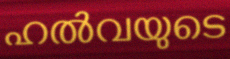
ഹൽവയുടെ